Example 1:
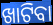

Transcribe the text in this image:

ଖାଟିବା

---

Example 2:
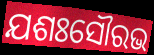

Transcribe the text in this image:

ଯଶଃସୌରଭ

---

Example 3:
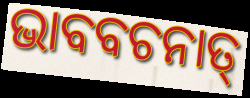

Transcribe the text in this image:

ଭାବବଚନାତ୍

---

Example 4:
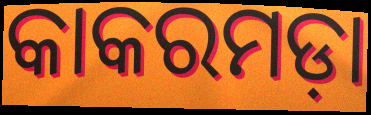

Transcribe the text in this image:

କାକରମଡ଼ା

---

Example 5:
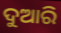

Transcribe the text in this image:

ଦୁଆରି